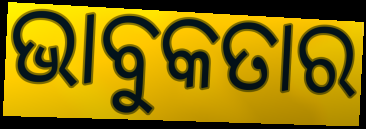
ଭାବୁକତାର